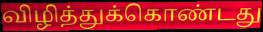
விழித்துக்கொண்டது